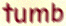
tumb